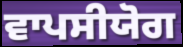
ਵਾਪਸੀਯੋਗ